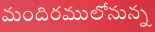
మందిరములోనున్న